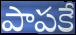
పాపకే